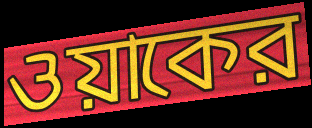
ওয়াকের